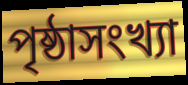
পৃষ্ঠাসংখ্যা